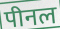
पीनल